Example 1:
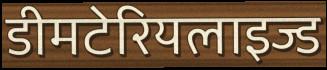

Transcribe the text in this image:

डीमटेरियलाइज्ड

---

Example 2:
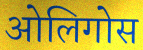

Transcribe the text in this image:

ओलिगोस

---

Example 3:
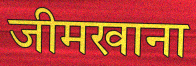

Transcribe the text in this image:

जीमखाना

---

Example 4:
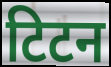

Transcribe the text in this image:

टिटन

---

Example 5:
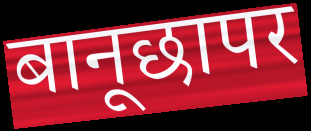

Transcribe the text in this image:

बानूछापर